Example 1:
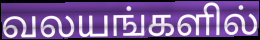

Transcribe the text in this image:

வலயங்களில்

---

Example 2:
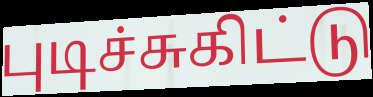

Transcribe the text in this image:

புடிச்சுகிட்டு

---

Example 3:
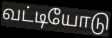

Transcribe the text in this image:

வட்டியோடு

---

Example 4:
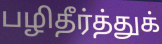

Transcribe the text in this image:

பழிதீர்த்துக்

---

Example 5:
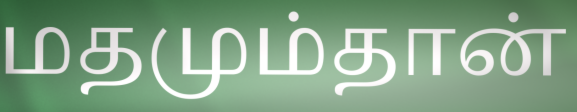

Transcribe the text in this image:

மதமும்தான்